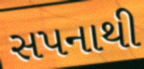
સપનાથી